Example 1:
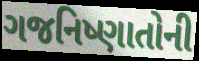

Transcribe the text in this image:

ગજનિષ્ણાતોની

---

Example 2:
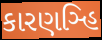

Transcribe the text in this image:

કારણઞ્હિ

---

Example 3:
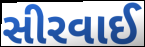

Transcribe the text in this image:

સીરવાઈ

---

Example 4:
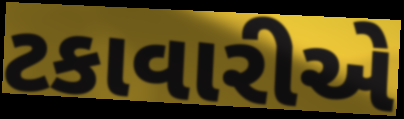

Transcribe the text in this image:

ટકાવારીએ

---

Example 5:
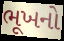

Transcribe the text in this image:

ભૂખનો